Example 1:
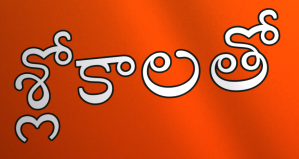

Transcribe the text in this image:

శ్లోకాలతో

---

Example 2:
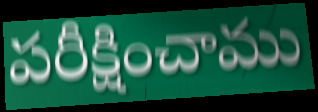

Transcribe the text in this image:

పరీక్షించాము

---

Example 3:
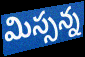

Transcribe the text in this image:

మిస్సన్న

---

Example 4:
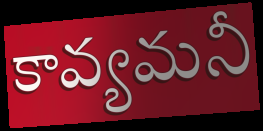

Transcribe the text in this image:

కావ్యమనీ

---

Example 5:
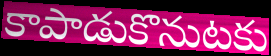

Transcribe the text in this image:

కాపాడుకొనుటకు